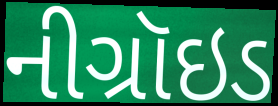
નીગ્રૉઇડ